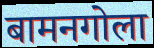
बामनगोला